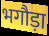
भगौड़ा